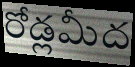
రోడ్లమీద